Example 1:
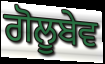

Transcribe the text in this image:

ਗੋਲੂਬੇਵ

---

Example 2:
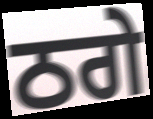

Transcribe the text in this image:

ਠਗੇ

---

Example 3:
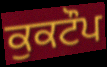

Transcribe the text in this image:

ਕੁਕਟੌਪ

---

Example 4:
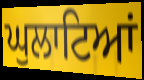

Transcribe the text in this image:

ਘੁਲਾਟਿਆਂ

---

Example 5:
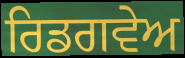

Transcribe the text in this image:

ਰਿਡਗਵੇਅ